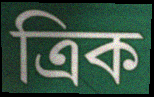
ত্রিক